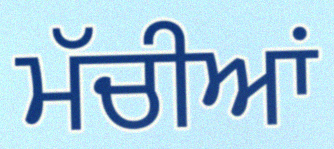
ਮੱਚੀਆਂ